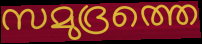
സമുദ്രത്തെ